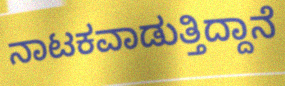
ನಾಟಕವಾಡುತ್ತಿದ್ದಾನೆ